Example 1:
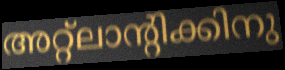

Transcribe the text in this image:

അറ്റ്ലാന്റിക്കിനു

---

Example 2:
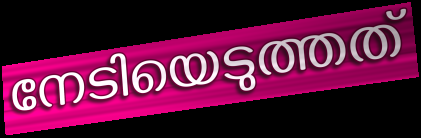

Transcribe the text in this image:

നേടിയെടുത്തത്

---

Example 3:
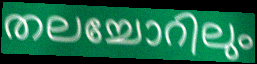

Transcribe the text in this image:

തലച്ചോറിലും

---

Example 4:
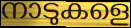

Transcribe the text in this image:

നാടുകളെ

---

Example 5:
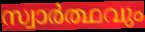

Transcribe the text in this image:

സ്വാർത്ഥവും